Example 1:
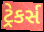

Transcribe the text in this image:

ટ્રેકર્સ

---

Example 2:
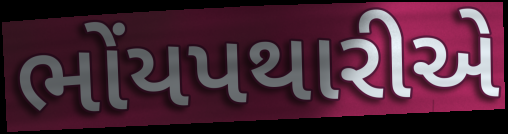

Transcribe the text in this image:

ભોંયપથારીએ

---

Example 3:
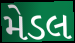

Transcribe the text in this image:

મેડલ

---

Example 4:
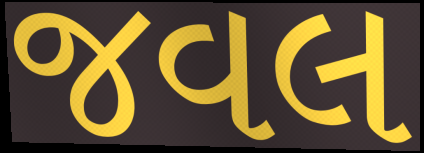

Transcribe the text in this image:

જવલ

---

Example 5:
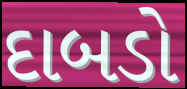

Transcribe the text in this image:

દાબડો